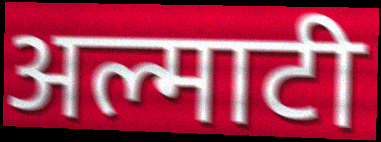
अल्माटी